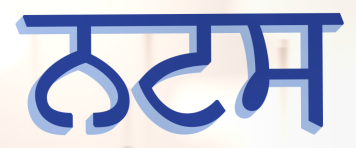
ਨਟਸ